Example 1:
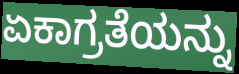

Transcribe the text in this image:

ಏಕಾಗ್ರತೆಯನ್ನು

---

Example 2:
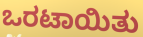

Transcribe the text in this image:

ಒರಟಾಯಿತು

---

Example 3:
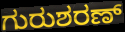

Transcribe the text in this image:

ಗುರುಶರಣ್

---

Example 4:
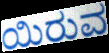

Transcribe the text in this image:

ಯಿರುವ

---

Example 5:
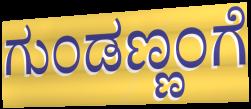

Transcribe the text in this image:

ಗುಂಡಣ್ಣಂಗೆ